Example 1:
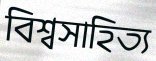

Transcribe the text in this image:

বিশ্বসাহিত্য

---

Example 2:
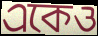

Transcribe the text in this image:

একেও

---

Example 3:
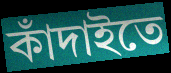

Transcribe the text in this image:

কাঁদাইতে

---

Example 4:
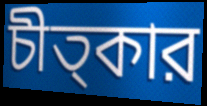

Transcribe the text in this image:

চীত্কার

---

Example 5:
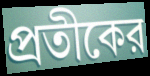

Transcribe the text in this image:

প্রতীকের